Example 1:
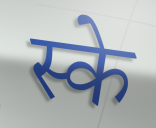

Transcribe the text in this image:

स्के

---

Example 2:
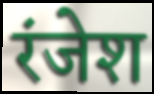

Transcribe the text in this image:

रंजेश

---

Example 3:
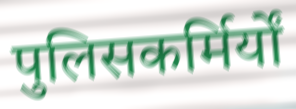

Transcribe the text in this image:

पुलिसकर्मिर्यों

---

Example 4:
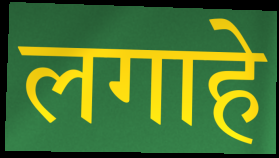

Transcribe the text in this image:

लगाहे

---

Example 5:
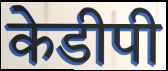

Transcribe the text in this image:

केडीपी